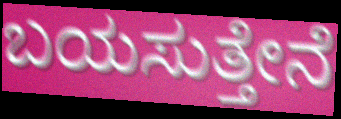
ಬಯಸುತ್ತೇನೆ